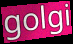
golgi